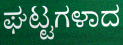
ಘಟ್ಟಗಳಾದ